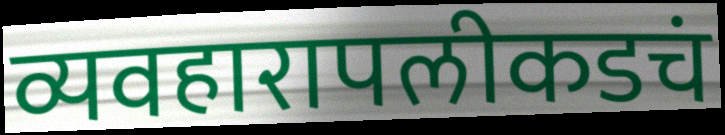
व्यवहारापलीकडचं